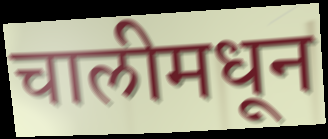
चालीमधून